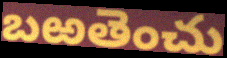
బఱతెంచు